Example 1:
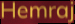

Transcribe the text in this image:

Hemraj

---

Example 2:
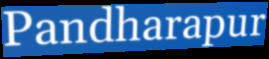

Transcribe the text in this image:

Pandharapur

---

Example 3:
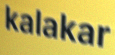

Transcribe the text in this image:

kalakar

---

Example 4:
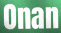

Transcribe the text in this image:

Onan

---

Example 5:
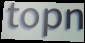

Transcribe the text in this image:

topn